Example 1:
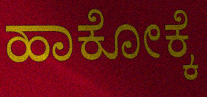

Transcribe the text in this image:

ಹಾಕೋಕ್ಕೆ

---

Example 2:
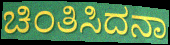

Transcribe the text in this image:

ಚಿಂತಿಸಿದನಾ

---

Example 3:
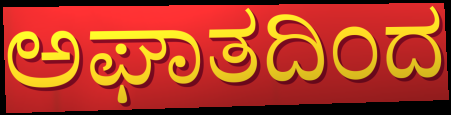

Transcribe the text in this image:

ಅಘಾತದಿಂದ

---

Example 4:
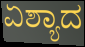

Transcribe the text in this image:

ಏಶ್ಯಾದ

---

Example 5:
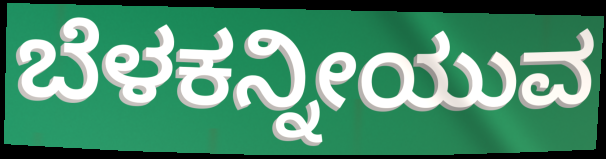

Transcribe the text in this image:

ಬೆಳಕನ್ನೀಯುವ